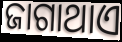
ଜାଗାଥାଏ